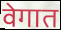
वेगात